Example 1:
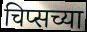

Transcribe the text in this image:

चिप्सच्या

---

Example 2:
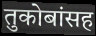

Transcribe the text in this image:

तुकोबांसह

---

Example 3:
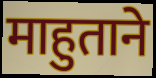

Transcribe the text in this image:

माहुताने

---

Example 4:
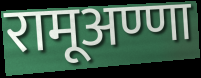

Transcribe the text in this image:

रामूअण्णा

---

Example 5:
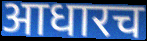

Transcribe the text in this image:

आधारच